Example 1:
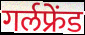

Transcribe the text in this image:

गर्लफ्रेंड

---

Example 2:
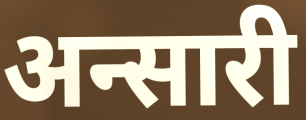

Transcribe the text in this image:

अन्सारी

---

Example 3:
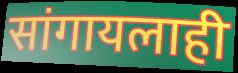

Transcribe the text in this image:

सांगायलाही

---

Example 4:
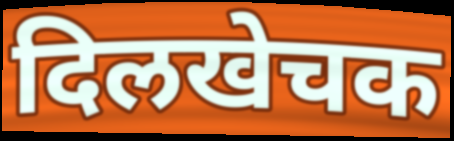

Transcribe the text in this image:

दिलखेचक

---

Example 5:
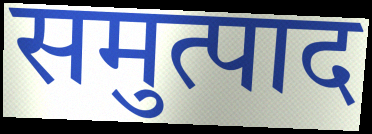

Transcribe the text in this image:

समुत्पाद